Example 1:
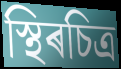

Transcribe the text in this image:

স্থিৰচিত্ৰ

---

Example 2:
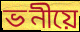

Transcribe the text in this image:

ভনীয়ে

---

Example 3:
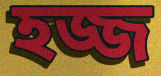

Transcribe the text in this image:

হজ্জ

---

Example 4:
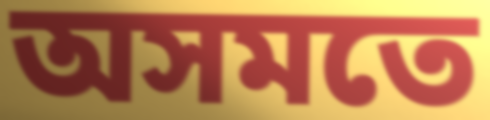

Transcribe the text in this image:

অসমতে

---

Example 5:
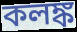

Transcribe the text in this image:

কলঙ্ক